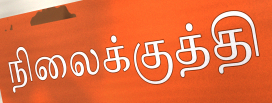
நிலைக்குத்தி